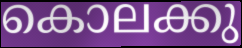
കൊലക്കു